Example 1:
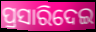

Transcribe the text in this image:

ପ୍ରସାରିଦେଇ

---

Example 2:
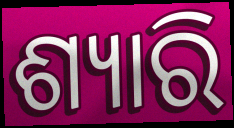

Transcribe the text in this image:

ଶ୍ୟାରି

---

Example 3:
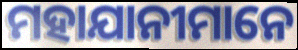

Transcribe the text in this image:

ମହାଯାନୀମାନେ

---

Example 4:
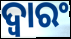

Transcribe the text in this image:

ଦ୍ୱାରଂ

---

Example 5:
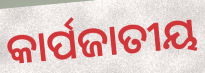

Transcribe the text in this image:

କାର୍ପଜାତୀୟ